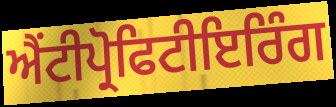
ਐਂਟੀਪ੍ਰੋਫਿਟੀਇਰਿੰਗ